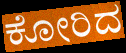
ಕೋರಿದ